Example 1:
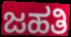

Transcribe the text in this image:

ಜಹತಿ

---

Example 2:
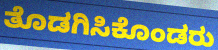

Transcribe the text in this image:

ತೊಡಗಿಸಿಕೊಂಡರು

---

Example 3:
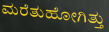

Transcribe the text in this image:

ಮರೆತುಹೋಗಿತ್ತು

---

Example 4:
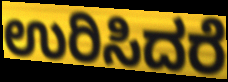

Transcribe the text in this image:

ಉರಿಸಿದರೆ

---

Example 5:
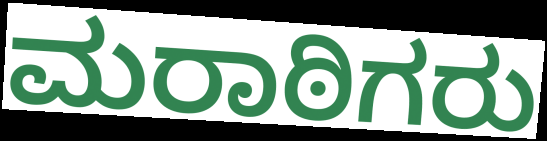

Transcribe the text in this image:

ಮರಾಠಿಗರು